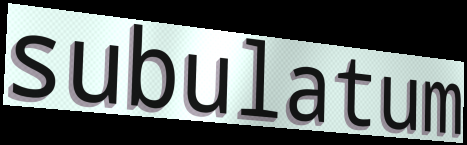
subulatum